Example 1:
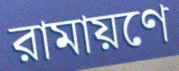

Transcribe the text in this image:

রামায়ণে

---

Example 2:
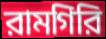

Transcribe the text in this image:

রামগিরি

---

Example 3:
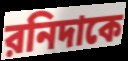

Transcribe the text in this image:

রনিদাকে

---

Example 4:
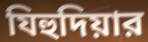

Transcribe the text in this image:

যিহুদিয়ার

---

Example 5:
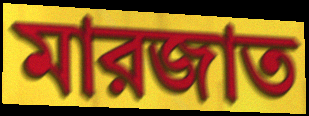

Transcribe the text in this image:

মারজাত